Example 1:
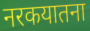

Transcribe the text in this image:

नरकयातना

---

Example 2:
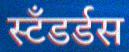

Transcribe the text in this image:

स्टँडर्डस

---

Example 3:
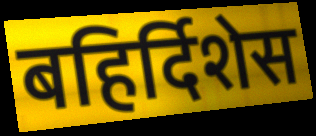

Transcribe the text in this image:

बहिर्दिशेस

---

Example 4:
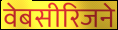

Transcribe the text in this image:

वेबसीरिजने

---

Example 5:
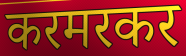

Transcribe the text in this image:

करमरकर